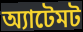
অ্যাটেমট